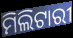
ମିଲିଟାରୀ